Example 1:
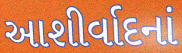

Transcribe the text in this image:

આશીર્વાદનાં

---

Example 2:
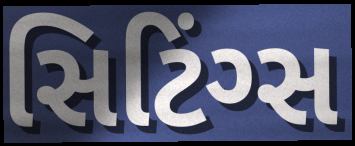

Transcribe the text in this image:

સિટિંગ્સ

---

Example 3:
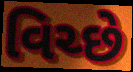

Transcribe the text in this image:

વિચ્છે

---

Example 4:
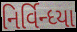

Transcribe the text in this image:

નિર્વિન્ધ્યા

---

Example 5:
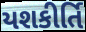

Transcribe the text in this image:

યશકીર્તિ